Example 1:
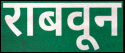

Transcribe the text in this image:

राबवून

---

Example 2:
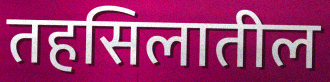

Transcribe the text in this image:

तहसिलातील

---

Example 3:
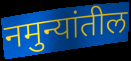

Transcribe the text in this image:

नमुन्यांतील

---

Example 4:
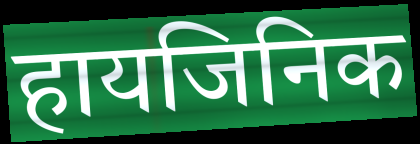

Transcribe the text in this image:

हायजिनिक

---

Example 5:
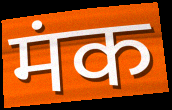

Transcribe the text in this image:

मंक